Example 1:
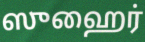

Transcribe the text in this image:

ஸுஹைர்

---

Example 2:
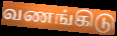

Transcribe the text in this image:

வணங்கிடு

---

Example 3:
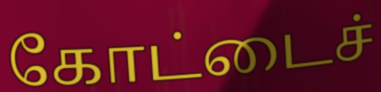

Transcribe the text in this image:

கோட்டைச்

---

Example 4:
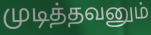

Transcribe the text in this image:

முடித்தவனும்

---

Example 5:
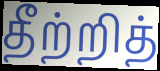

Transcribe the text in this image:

தீற்றித்